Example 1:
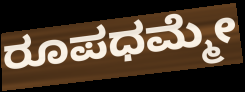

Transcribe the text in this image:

ರೂಪಧಮ್ಮೇ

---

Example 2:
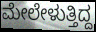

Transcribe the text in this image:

ಮೇಲೇಳುತ್ತಿದ್ದ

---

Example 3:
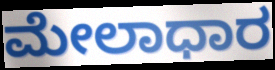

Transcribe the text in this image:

ಮೇಲಾಧಾರ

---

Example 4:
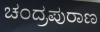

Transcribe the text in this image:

ಚಂದ್ರಪುರಾಣ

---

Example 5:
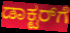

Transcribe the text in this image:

ಡಾಕ್ಟರ್‌ಗೆ